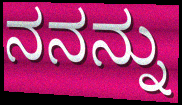
ನನನ್ನು